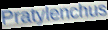
Pratylenchus